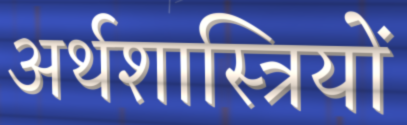
अर्थशास्त्रियों